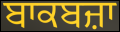
ਬਾਕਬਜ਼ਾ